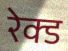
रेक्ड